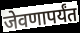
जेवणापर्यंत